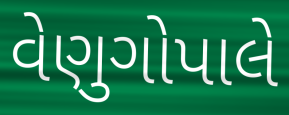
વેણુગોપાલે